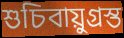
শুচিবায়ুগ্ৰস্ত